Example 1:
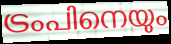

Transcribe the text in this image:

ട്രംപിനെയും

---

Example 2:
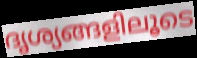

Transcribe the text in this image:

ദൃശ്യങ്ങളിലൂടെ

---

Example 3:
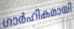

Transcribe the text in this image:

ഗാർഹികമായി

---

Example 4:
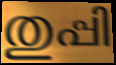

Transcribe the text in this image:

തുപ്പി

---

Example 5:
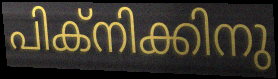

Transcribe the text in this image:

പിക്നിക്കിനു